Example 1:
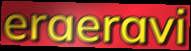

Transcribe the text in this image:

eraeravi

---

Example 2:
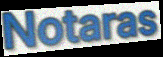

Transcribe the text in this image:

Notaras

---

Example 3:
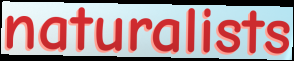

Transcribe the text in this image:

naturalists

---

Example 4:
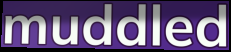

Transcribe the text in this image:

muddled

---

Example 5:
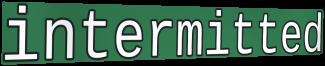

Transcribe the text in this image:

intermitted